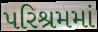
પરિશ્રમમાં